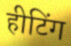
हीटिंग